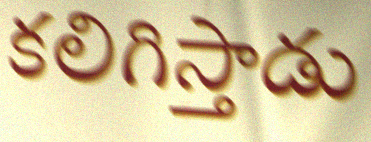
కలిగిస్తాడు